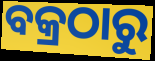
ବକ୍ରଠାରୁ